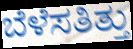
ಬೆಳೆಸತಿತ್ತು